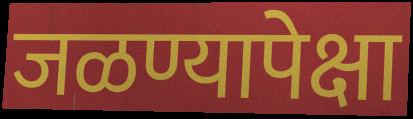
जळण्यापेक्षा